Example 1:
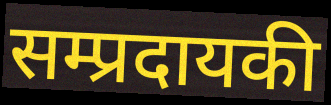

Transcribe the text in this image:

सम्प्रदायकी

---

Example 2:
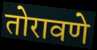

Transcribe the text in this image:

तोरावणे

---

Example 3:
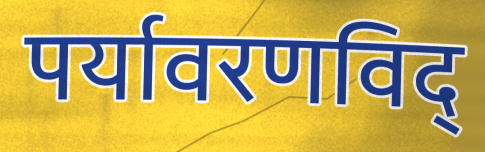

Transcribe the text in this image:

पर्यावरणविद्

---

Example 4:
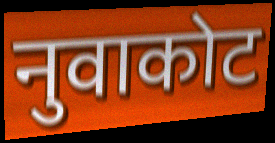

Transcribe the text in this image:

नुवाकोट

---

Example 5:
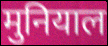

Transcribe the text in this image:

मुनियाल